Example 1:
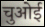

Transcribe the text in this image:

चुओई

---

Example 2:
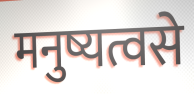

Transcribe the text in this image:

मनुष्यत्वसे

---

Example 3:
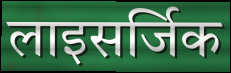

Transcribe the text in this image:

लाइसर्जिक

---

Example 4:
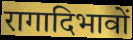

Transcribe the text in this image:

रागादिभावों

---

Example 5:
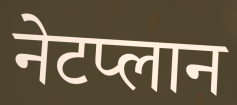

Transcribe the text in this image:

नेटप्लान